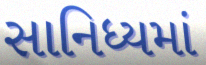
સાનિધ્યમાં